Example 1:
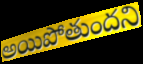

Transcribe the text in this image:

అయిపోతుందని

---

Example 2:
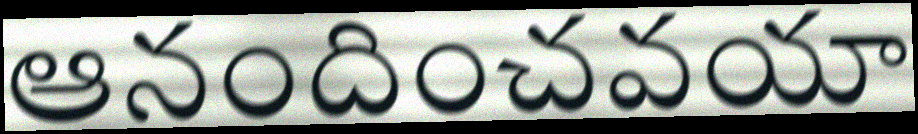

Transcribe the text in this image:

ఆనందించవయా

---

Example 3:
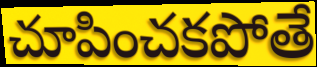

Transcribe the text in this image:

చూపించకపోతే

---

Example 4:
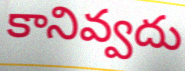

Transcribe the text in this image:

కానివ్వదు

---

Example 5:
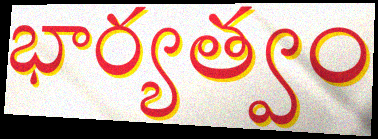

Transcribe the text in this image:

భార్యత్వం